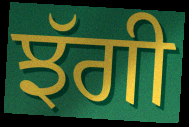
ਝੱਗੀ